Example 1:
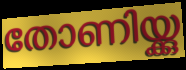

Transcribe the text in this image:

തോണിയ്ക്കു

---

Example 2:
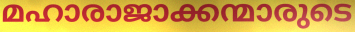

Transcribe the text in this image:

മഹാരാജാക്കന്മാരുടെ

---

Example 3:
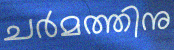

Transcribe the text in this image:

ചർമത്തിനു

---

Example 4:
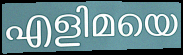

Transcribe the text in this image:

എളിമയെ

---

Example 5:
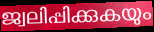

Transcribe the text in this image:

ജ്വലിപ്പിക്കുകയും